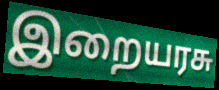
இறையரசு